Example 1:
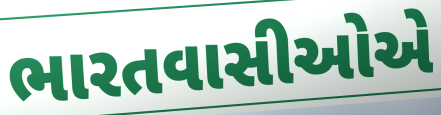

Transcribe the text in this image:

ભારતવાસીઓએ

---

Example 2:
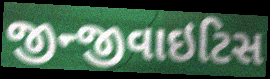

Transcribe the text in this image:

જીન્જીવાઇટિસ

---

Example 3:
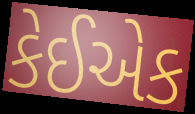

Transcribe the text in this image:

કેઈએક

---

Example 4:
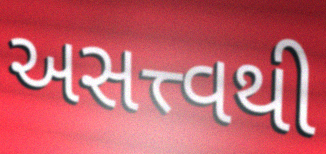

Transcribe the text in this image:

અસત્ત્વથી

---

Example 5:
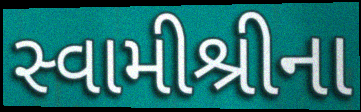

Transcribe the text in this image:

સ્વામીશ્રીના